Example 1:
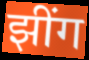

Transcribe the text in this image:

झींग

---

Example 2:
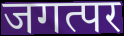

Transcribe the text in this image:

जगत्पर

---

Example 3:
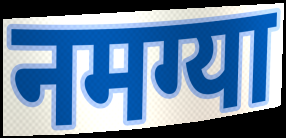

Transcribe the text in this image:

नमग्या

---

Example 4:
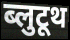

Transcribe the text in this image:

ब्लुटूथ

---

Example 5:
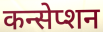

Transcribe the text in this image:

कन्सेप्शन